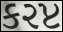
કરપ્ટ